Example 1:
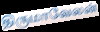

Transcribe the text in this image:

திருமாவேலன்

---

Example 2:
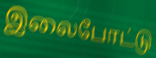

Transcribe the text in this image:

இலைபோட்டு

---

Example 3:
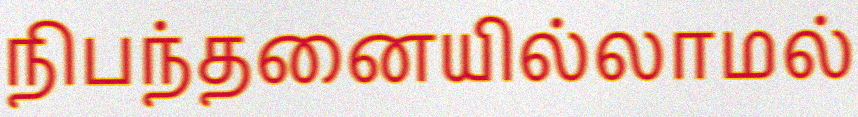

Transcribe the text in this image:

நிபந்தனையில்லாமல்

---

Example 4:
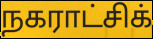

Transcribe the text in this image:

நகராட்சிக்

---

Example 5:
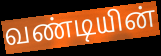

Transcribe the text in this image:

வண்டியின்